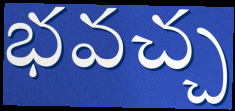
భవచ్చ